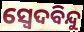
ସ୍ଵେଦବିନ୍ଦୁ